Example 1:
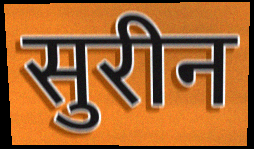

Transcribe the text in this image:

सुरीन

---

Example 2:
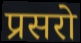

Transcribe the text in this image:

प्रसरो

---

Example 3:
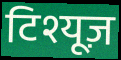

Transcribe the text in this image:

टिश्यूज़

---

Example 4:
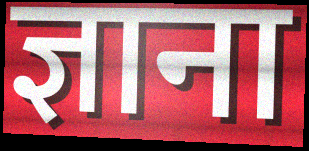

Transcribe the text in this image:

ज्ञाना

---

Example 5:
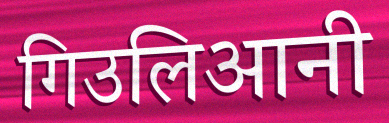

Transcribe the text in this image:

गिउलिआनी